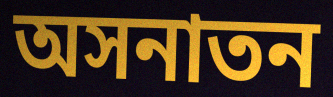
অসনাতন